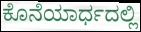
ಕೊನೆಯಾರ್ಧದಲ್ಲಿ